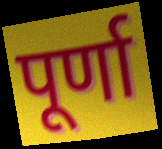
पूर्णा